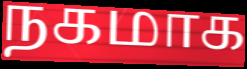
நகமாக